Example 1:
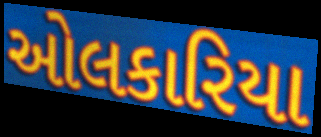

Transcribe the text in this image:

ઓલકારિયા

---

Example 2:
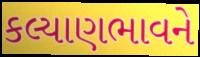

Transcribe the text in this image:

કલ્યાણભાવને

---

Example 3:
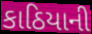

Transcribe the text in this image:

કાઠિયાની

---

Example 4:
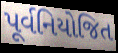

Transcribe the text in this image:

પૂર્વનિયોજિત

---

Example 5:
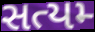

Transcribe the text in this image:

સત્યમ્‍